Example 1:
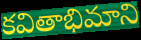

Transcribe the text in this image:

కవితాభిమాని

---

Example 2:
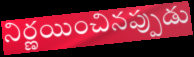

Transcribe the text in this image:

నిర్ణయించినప్పుడు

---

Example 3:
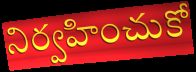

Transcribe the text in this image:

నిర్వహించుకో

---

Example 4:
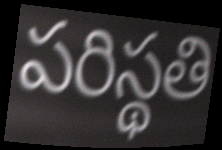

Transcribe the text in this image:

పరిస్థతి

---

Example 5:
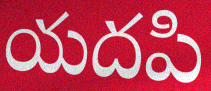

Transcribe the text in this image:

యదపి